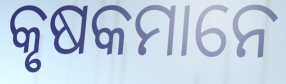
କୃଷକମାନେ